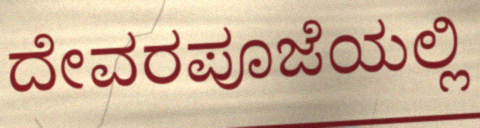
ದೇವರಪೂಜೆಯಲ್ಲಿ